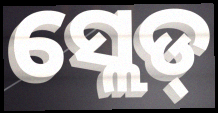
ସ୍ଲେଡ୍